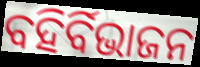
ବହିର୍ବିଭାଜନ